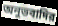
অনুভবাদির